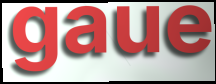
gaue